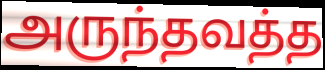
அருந்தவத்த